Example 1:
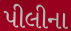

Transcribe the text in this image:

પીલીના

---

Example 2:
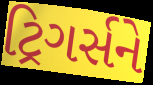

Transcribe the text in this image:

ટ્રિગર્સને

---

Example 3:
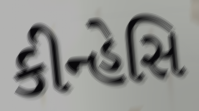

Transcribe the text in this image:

કીન્હેસિ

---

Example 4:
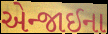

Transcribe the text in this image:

એન્જાઈના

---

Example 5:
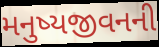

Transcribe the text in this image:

મનુષ્યજીવનની